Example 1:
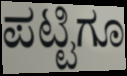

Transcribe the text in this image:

ಪಟ್ಟಿಗೂ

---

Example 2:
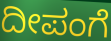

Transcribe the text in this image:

ದೀಪಂಗೆ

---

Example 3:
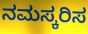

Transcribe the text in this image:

ನಮಸ್ಕರಿಸ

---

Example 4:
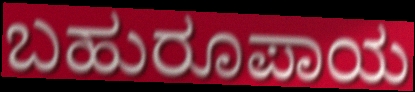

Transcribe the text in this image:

ಬಹುರೂಪಾಯ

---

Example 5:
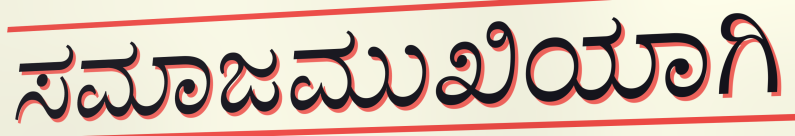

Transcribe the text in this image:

ಸಮಾಜಮುಖಿಯಾಗಿ